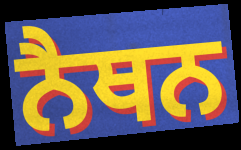
ਨੈਥਨ